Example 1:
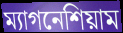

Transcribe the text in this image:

ম্যাগনেশিয়াম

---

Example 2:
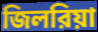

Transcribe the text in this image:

জিলরিয়া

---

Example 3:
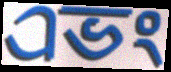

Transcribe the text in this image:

এভং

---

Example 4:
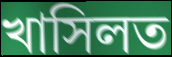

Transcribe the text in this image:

খাসিলত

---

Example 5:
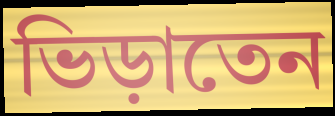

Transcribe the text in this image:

ভিড়াতেন